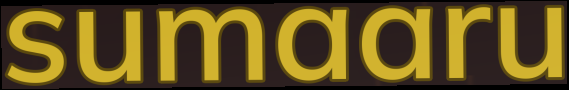
sumaaru